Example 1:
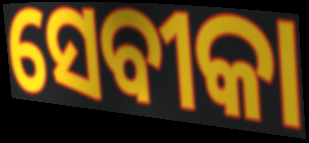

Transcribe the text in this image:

ସେବୀକା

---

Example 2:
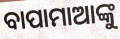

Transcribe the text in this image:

ବାପାମାଆଙ୍କୁ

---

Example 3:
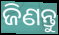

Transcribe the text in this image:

ଜିଣନ୍ତୁ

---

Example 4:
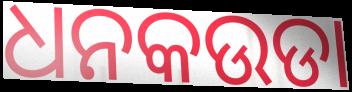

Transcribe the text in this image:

ଧନକଉଡା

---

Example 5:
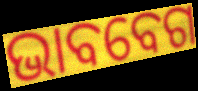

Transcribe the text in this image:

ଭାବବେଗ